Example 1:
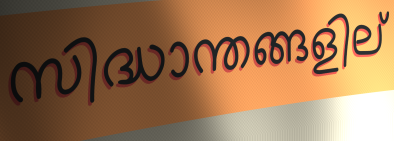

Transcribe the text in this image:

സിദ്ധാന്തങ്ങളില്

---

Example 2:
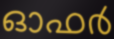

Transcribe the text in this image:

ഓഫർ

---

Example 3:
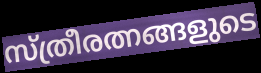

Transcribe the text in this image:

സ്ത്രീരത്നങ്ങളുടെ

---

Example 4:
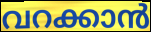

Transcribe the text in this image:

വറക്കാൻ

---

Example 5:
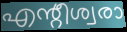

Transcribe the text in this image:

എന്റീശ്വരാ